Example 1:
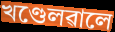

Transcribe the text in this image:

খণ্ডেলৱালে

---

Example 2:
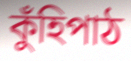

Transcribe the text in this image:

কুঁহিপাঠ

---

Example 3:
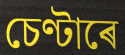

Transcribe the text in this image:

চেণ্টাৰে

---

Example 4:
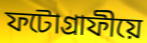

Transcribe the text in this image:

ফটোগ্ৰাফীয়ে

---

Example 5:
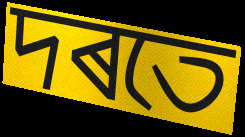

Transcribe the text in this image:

দৰতে